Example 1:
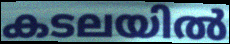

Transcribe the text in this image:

കടലയിൽ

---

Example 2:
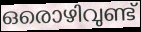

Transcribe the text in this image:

ഒരൊഴിവുണ്ട്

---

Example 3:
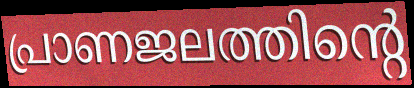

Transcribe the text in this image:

പ്രാണജലത്തിന്റെ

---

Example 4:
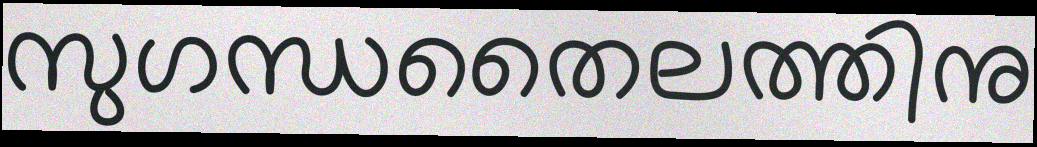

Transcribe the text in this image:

സുഗന്ധതൈലത്തിനു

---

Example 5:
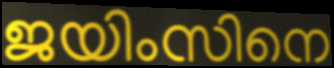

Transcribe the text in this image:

ജയിംസിനെ